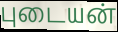
புடையன்